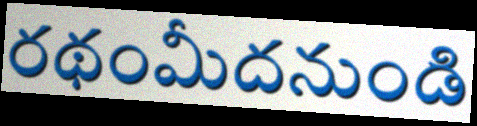
రథంమీదనుండి